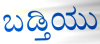
ಬಡ್ತಿಯು